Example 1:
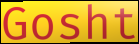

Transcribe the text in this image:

Gosht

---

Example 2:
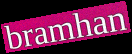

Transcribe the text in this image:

bramhan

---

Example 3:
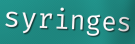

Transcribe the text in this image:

syringes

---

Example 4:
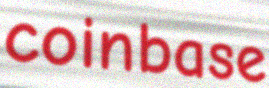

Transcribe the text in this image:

coinbase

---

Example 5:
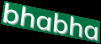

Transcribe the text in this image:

bhabha